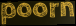
poorn